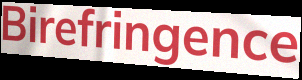
Birefringence